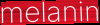
melanin